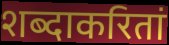
शब्दाकरितां